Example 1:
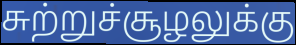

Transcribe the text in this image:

சுற்றுச்சூழலுக்கு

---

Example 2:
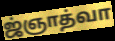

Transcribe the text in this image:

ஜ்ஞாத்வா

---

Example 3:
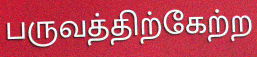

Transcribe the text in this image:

பருவத்திற்கேற்ற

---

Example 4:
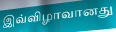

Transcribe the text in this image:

இவ்விழாவானது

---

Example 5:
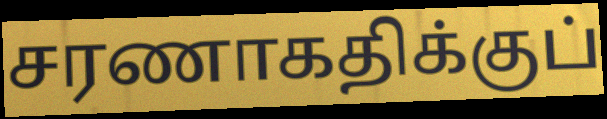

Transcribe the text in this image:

சரணாகதிக்குப்